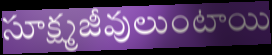
సూక్ష్మజీవులుంటాయి